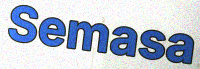
Semasa